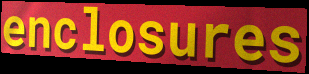
enclosures